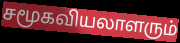
சமூகவியலாளரும்